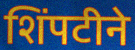
शिंपटीने